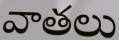
వాతలు